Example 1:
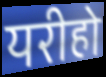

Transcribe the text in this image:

यरीहो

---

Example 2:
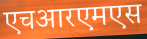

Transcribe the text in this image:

एचआरएमएस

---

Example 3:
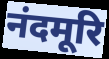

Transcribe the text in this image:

नंदमूरि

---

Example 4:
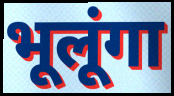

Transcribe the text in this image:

भूलूंगा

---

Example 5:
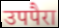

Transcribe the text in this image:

उपपैरा